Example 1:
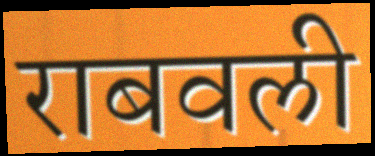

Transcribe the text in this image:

राबवली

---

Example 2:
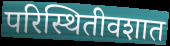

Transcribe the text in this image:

परिस्थितीवशात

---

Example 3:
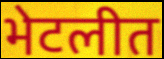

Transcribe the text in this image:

भेटलीत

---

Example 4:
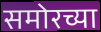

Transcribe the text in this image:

समोरच्या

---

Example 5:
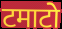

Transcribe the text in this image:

टमाटो